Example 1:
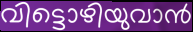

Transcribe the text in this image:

വിട്ടൊഴിയുവാൻ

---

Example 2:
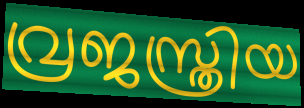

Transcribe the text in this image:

വ്രജസ്ത്രിയ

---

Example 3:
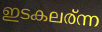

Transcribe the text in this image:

ഇടകലര്ന്ന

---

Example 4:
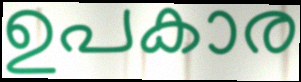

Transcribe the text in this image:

ഉപകാര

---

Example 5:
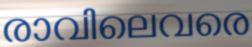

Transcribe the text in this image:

രാവിലെവരെ